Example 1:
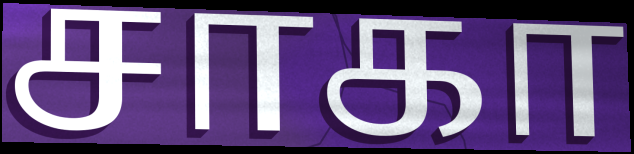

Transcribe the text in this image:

சாகா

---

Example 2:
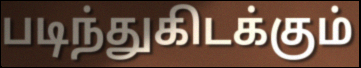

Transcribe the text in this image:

படிந்துகிடக்கும்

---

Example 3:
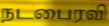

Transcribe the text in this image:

நடபைரவி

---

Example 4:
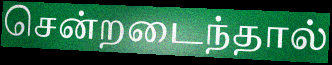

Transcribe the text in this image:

சென்றடைந்தால்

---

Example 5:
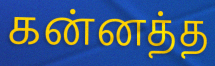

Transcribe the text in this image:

கன்னத்த